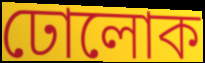
ঢোলোক